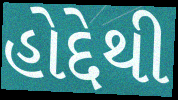
હોદ્દેથી